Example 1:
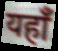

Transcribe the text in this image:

यहाँ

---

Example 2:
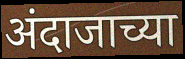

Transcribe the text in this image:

अंदाजाच्या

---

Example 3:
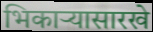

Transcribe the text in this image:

भिकार्‍यासारखे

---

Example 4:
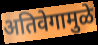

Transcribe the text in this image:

अतिवेगामुळे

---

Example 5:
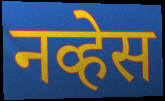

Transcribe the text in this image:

नव्हेस